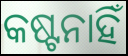
କଷ୍ଟନାହିଁ